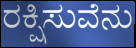
ರಕ್ಷಿಸುವೆನು